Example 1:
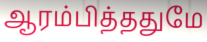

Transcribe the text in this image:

ஆரம்பித்ததுமே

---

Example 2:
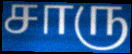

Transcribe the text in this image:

சாரு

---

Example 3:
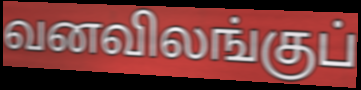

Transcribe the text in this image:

வனவிலங்குப்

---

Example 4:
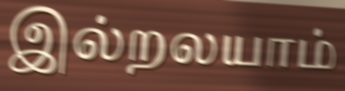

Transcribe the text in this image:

இல்றலயாம்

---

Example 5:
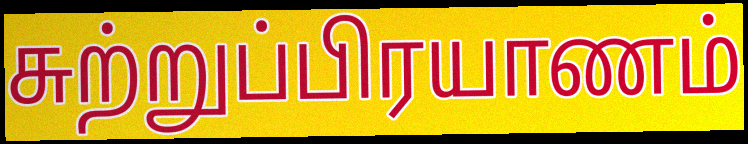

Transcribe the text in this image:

சுற்றுப்பிரயாணம்